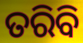
ତରିବି